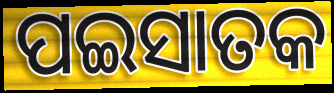
ପଇସାତକ